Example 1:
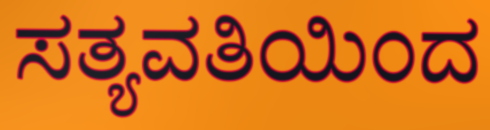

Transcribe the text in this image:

ಸತ್ಯವತಿಯಿಂದ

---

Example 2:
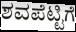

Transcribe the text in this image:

ಶವಪೆಟ್ಟಿಗೆ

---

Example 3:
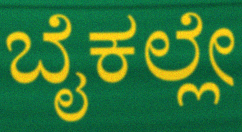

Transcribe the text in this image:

ಬೈಕಲ್ಲೇ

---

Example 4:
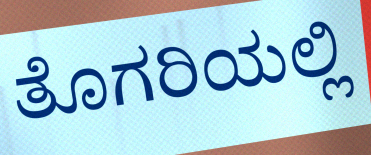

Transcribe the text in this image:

ತೊಗರಿಯಲ್ಲಿ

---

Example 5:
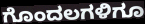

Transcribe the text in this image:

ಗೊಂದಲಗಳಿಗೂ